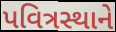
પવિત્રસ્થાને